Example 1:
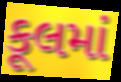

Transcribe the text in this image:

કૂલમાં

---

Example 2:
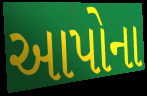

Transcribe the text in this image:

આપોના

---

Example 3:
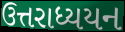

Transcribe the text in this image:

ઉત્તરાધ્યયન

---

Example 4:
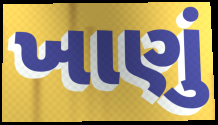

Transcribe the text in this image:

ખાણું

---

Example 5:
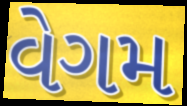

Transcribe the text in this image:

વેગમ